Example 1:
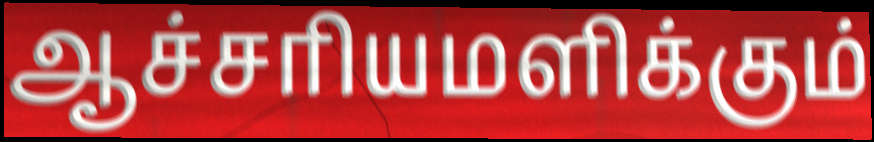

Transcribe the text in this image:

ஆச்சரியமளிக்கும்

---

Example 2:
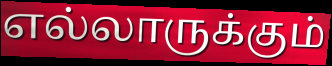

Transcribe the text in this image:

எல்லாருக்கும்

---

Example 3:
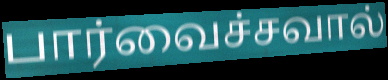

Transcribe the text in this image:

பார்வைச்சவால்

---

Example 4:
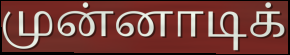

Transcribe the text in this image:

முன்னாடிக்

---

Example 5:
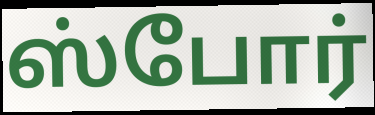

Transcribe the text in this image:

ஸ்போர்